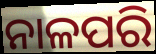
ନାଳପରି